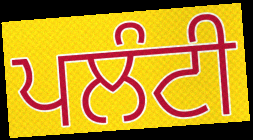
ਪਲੰਟੀ